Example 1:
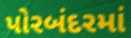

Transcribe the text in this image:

પોરબંદરમાં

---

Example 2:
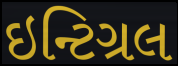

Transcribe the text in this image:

ઇન્ટિગ્રલ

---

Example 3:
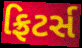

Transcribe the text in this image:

ફ્રિટર્સ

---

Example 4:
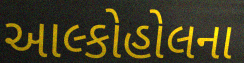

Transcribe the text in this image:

આલ્કોહોલના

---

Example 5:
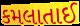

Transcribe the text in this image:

કમલાતાઈ